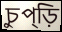
চুপ্‌ড়ি